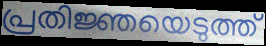
പ്രതിജ്ഞയെടുത്ത്